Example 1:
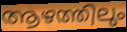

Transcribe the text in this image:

ആഴത്തിലും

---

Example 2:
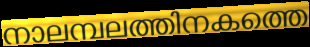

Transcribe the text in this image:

നാലമ്പലത്തിനകത്തെ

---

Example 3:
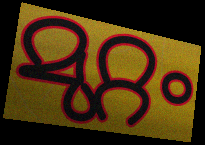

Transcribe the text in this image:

മുറ്റം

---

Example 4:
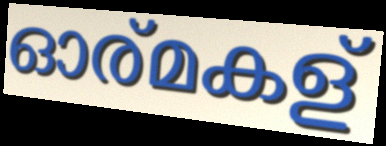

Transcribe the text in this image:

ഓര്മകള്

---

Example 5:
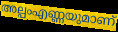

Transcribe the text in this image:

അല്പംഎണ്ണയുമാണ്